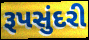
રૂપસુંદરી